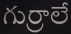
గుర్రాలే